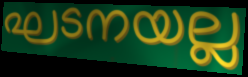
ഘടനയല്ല